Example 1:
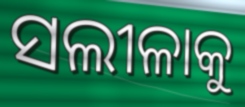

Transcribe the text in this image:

ସଲୀଳାକୁ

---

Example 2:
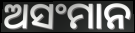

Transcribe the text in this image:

ଅସଂମାନ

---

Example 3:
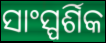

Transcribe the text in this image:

ସାଂସ୍ପର୍ଶିକ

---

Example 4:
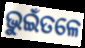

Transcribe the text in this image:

ଭୁଇଁତଳେ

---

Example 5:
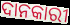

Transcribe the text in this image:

ଦାନକାରୀ